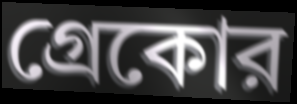
গ্রেকোর